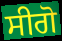
ਸੀਗੋ